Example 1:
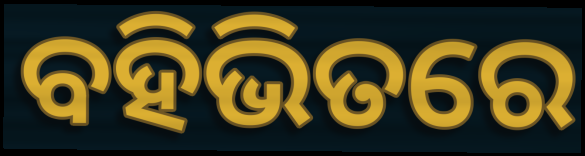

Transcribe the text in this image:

ବହିଭିତରେ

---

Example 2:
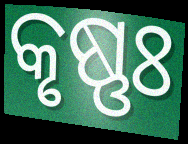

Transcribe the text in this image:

କୃଷ୍ଣଃ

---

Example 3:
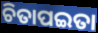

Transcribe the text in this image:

ଚିତାପଇତା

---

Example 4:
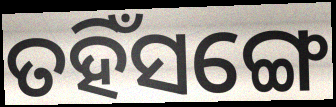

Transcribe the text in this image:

ତହିଁସଙ୍ଗେ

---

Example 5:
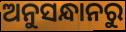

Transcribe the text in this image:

ଅନୁସନ୍ଧାନରୁ